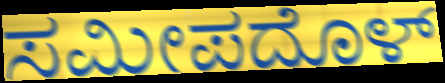
ಸಮೀಪದೊಳ್